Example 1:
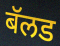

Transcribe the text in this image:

बॅलड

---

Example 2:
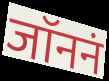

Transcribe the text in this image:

जॉननं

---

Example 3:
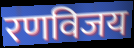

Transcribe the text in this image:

रणविजय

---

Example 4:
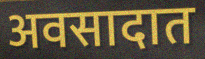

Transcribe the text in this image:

अवसादात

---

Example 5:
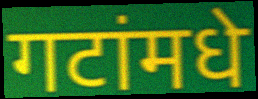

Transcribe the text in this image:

गटांमधे